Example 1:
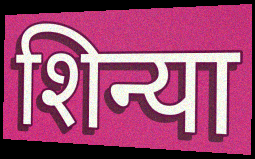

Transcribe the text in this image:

शिन्या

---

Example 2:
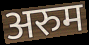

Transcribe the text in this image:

अरुम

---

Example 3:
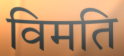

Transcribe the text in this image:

विमति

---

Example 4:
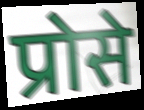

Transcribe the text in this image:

प्रोसे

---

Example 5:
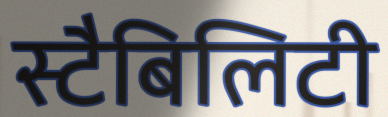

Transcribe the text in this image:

स्टैबिलिटी